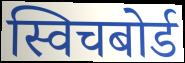
स्विचबोर्ड